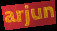
arjun